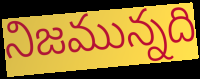
నిజమున్నది